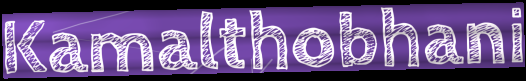
Kamalthobhani